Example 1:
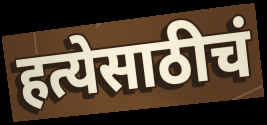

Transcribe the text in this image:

हत्येसाठीचं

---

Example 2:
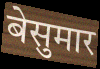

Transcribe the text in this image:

बेसुमार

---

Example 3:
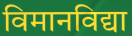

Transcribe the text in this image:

विमानविद्या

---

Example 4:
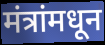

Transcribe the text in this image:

मंत्रांमधून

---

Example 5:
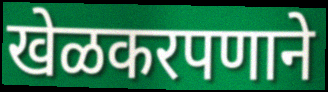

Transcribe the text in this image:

खेळकरपणाने